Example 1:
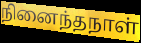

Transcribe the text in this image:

நினைந்தநாள்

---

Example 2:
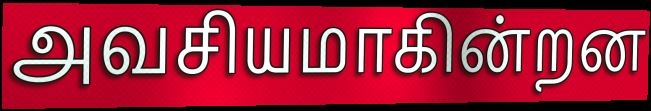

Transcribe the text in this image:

அவசியமாகின்றன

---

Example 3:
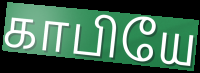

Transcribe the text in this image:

காபியே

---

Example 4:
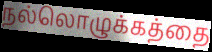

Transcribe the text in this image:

நல்லொழுக்கத்தை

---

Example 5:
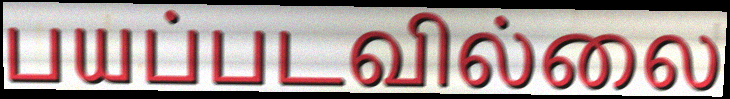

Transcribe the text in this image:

பயப்படவில்லை